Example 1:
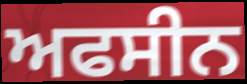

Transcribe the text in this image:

ਅਫਸੀਨ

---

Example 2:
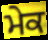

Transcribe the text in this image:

ਮੇਕ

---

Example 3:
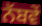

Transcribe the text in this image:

ਨੱਬਵੇਂ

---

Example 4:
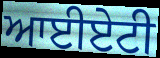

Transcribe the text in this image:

ਆਈਏਟੀ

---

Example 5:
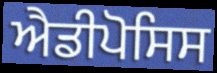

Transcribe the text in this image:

ਐਡੀਪੋਸਿਸ